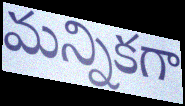
మన్నికగా